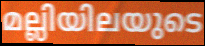
മല്ലിയിലയുടെ